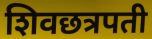
शिवछत्रपती